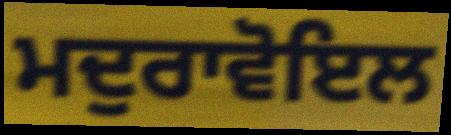
ਮਦੁਰਾਵੋਇਲ